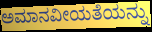
ಅಮಾನವೀಯತೆಯನ್ನು